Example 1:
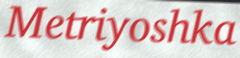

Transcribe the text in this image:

Metriyoshka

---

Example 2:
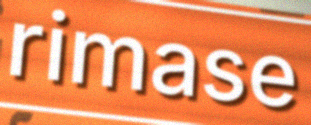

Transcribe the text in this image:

rimase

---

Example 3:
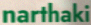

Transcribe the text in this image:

narthaki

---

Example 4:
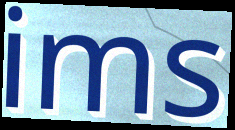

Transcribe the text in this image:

ims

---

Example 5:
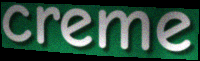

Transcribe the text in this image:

creme